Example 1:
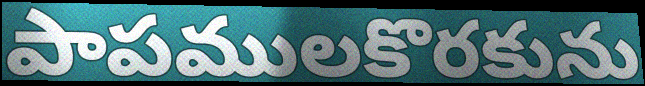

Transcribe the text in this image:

పాపములకొరకును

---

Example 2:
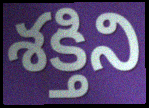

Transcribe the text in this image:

శక్తిని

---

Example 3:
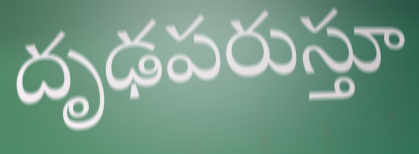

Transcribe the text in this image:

దృఢపరుస్తూ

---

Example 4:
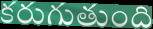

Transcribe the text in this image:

కరుగుతుంది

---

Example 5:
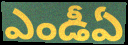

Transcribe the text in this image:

ఎండీఏ